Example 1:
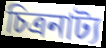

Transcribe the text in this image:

চিত্ৰনাট্য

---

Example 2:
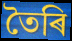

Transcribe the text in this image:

তৈৰি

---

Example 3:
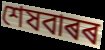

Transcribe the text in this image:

শেষবাৰৰ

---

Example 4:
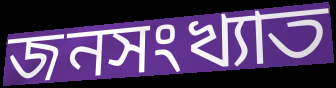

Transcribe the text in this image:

জনসংখ্যাত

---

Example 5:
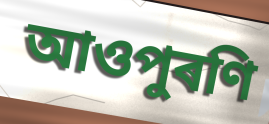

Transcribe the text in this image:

আওপুৰণি